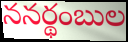
ననర్థంబుల